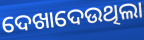
ଦେଖାଦେଉଥିଲା